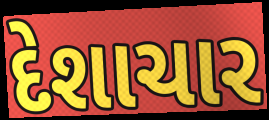
દેશાચાર